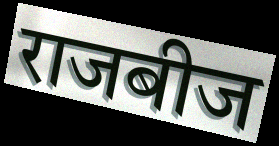
राजबीज